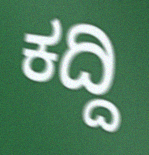
ಕದ್ದಿ